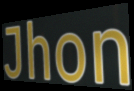
Jhon